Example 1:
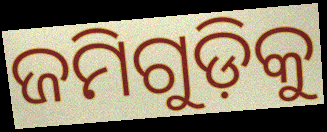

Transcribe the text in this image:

ଜମିଗୁଡ଼ିକୁ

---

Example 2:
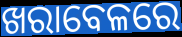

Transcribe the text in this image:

ଖରାବେଳରେ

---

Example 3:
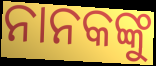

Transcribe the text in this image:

ନାନକଙ୍କୁ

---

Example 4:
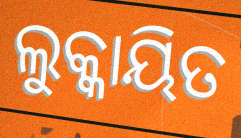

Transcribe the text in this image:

ଲୁକ୍କାୟିତ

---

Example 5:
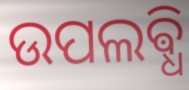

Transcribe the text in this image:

ଉପଲଵ୍ଧି